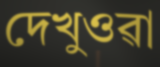
দেখুওৱা